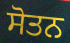
ਸੋਤਨ